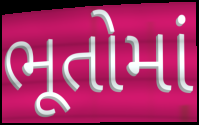
ભૂતોમાં